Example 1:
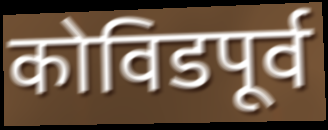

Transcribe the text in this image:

कोविडपूर्व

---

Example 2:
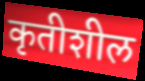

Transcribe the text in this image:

कृतीशील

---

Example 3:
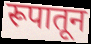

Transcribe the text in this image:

रूपातून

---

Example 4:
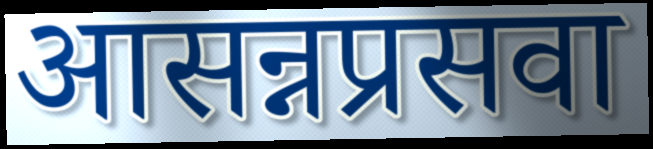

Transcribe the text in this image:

आसन्नप्रसवा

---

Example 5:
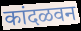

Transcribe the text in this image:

कांदळवन